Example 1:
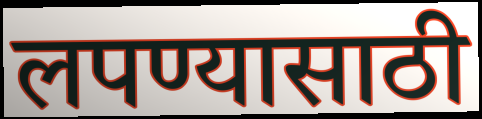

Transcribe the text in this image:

लपण्यासाठी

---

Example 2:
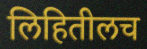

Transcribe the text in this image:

लिहितीलच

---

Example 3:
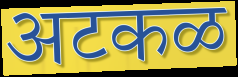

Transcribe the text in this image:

अटकळ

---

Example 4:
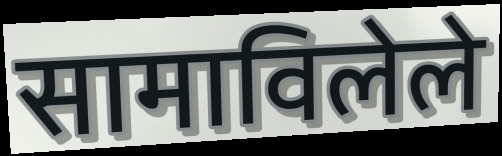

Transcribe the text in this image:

सामाविलेले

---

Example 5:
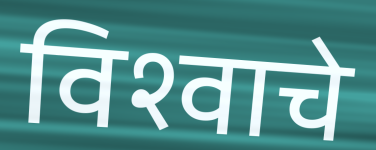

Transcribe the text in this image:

विश्वाचे